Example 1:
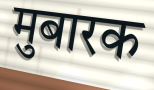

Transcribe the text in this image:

मुबारक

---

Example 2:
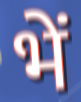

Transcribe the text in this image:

भें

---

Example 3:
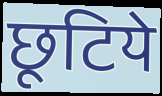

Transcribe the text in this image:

छूटिये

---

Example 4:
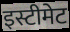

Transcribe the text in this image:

इस्टीमेट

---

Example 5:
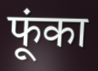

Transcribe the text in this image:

फूंका